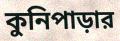
কুনিপাড়ার